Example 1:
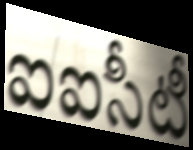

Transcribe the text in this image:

ఐఐసీటీ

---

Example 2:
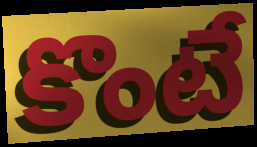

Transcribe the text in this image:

కొంటే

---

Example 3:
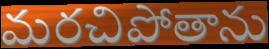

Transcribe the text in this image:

మరచిపోతాను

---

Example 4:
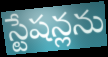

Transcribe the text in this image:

స్టేషన్లను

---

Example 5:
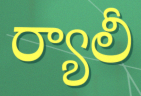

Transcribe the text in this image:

ర్యాలీ